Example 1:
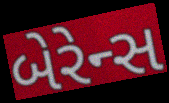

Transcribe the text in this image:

બેરેન્સ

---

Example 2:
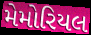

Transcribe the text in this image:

મેમોરિયલ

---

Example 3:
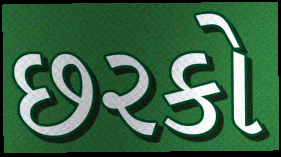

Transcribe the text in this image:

છરકો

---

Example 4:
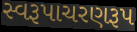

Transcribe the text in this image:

સ્વરૂપાચરણરૂપ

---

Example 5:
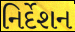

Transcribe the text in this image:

નિર્દેશન